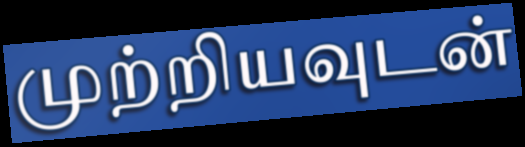
முற்றியவுடன்